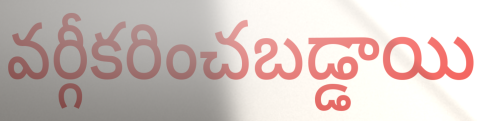
వర్గీకరించబడ్డాయి